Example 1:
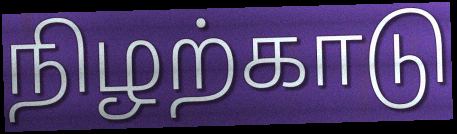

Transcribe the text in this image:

நிழற்காடு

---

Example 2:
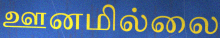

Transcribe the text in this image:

ஊனமில்லை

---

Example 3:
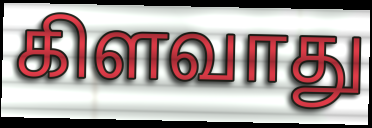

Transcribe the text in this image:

கிளவாது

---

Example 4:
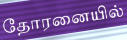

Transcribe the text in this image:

தோரனையில்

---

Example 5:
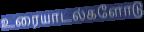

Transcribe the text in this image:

உரையாடல்களோடு